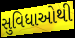
સુવિધાઓથી